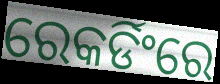
ରେକର୍ଡିଂରେ